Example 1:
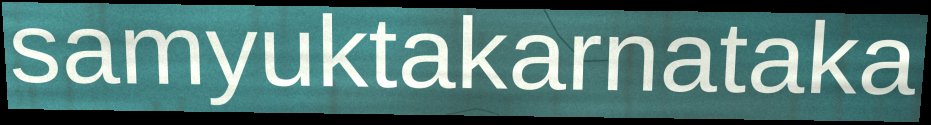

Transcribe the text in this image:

samyuktakarnataka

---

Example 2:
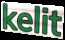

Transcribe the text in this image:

kelit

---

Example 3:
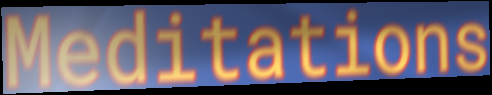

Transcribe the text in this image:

Meditations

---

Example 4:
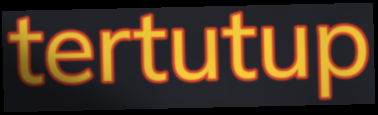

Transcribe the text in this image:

tertutup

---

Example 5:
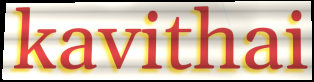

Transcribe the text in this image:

kavithai